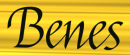
Benes